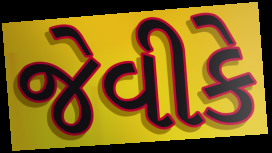
જેવીકે